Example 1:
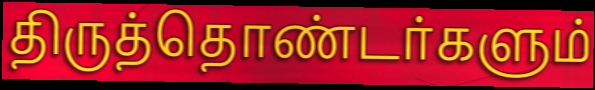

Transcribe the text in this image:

திருத்தொண்டர்களும்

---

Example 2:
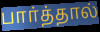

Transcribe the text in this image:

பார்த்தால்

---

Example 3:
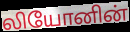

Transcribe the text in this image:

லியோனின்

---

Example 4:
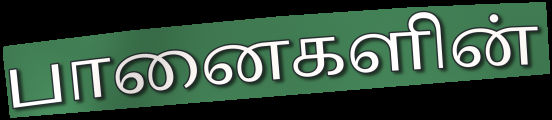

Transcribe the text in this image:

பானைகளின்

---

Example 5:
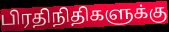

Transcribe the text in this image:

பிரதிநிதிகளுக்கு